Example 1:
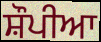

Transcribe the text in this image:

ਸ਼ੌਪੀਆ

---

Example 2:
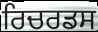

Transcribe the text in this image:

ਰਿਚਰਡਸ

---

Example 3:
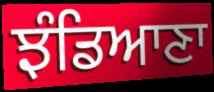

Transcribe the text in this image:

ਝੰਡਿਆਣਾ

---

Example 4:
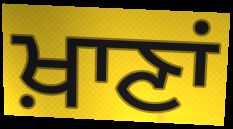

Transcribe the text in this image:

ਖ਼ਾਣਾਂ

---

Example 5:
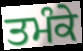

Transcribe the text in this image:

ਤਮੰਕੇ